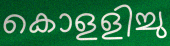
കൊളളിച്ചു